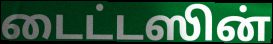
டைட்டஸின்